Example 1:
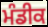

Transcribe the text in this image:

ਮੰਡੀਕ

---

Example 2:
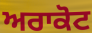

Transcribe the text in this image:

ਅਰਾਕੋਟ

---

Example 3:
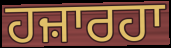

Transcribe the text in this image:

ਹਜ਼ਾਰਹਾ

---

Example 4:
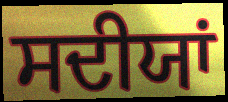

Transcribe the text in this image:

ਸਦੀਯਾਂ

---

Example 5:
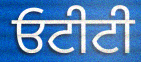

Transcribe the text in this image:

ਓਟੀਟੀ